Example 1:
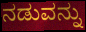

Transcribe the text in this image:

ನಡುವನ್ನು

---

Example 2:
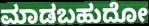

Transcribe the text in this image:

ಮಾಡಬಹುದೋ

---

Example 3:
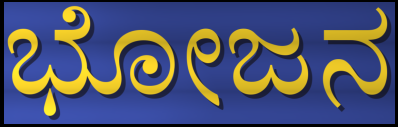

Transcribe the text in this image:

ಭೋಜನ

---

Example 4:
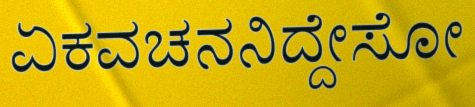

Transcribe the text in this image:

ಏಕವಚನನಿದ್ದೇಸೋ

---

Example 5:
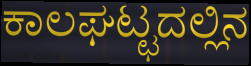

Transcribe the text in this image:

ಕಾಲಘಟ್ಟದಲ್ಲಿನ